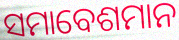
ସମାବେଶମାନ